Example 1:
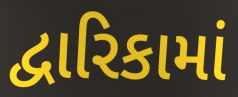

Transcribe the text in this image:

દ્વારિકામાં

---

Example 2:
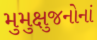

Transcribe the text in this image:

મુમુક્ષુજનોનાં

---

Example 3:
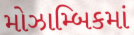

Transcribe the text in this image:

મોઝામ્બિકમાં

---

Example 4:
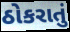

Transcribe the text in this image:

ઠોકરાતું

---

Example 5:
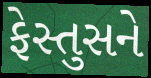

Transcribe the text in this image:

ફેસ્તુસને